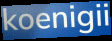
koenigii